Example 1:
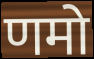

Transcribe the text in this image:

णमो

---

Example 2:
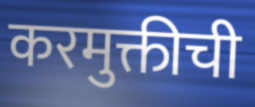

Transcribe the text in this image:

करमुक्तीची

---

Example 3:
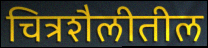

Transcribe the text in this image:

चित्रशैलीतील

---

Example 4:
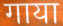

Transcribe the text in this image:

गाया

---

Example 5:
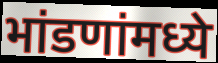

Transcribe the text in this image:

भांडणांमध्ये